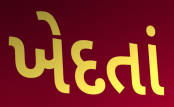
ખેદતાં